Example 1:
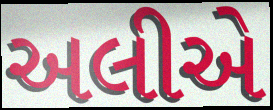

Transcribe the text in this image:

અલીએ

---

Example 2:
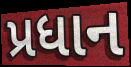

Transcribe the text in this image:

પ્રધાન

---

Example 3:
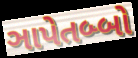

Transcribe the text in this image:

ઞાપેતબ્બો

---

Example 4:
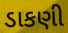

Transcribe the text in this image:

ડાકણી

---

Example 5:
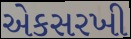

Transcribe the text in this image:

એકસરખી